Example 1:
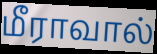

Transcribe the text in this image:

மீராவால்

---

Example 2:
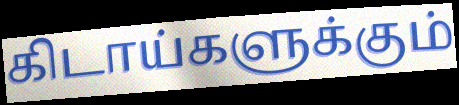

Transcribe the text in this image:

கிடாய்களுக்கும்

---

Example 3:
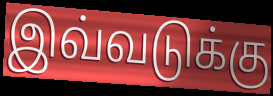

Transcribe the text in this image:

இவ்வடுக்கு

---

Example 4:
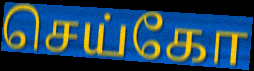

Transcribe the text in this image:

செய்கோ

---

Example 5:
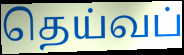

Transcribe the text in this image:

தெய்வப்